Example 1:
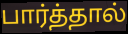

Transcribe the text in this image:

பார்த்தால்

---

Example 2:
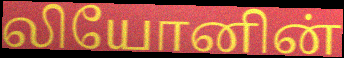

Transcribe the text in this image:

லியோனின்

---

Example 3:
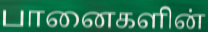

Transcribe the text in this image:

பானைகளின்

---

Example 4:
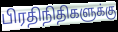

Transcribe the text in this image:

பிரதிநிதிகளுக்கு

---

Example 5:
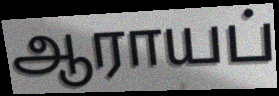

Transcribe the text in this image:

ஆராயப்